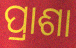
ପ୍ରାଶା